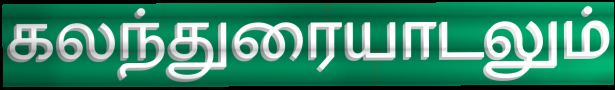
கலந்துரையாடலும்